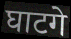
घाटगे